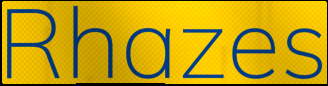
Rhazes